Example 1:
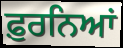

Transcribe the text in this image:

ਫ਼ੁਰਨਿਆਂ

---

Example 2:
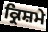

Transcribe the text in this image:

ਕ੍ਰਿਸ਼ਮੇ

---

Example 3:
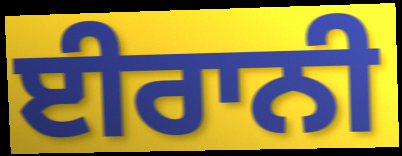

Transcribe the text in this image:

ਈਰਾਨੀ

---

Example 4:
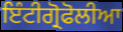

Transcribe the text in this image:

ਇੰਟੀਗ੍ਰੋਫੋਲੀਆ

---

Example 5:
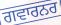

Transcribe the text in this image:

ਗਵਾਰਨਰ